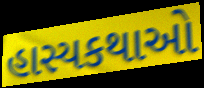
હાસ્યકથાઓ